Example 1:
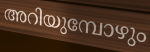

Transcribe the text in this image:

അറിയുമ്പോഴും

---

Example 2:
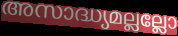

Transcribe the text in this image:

അസാദ്ധ്യമല്ലല്ലോ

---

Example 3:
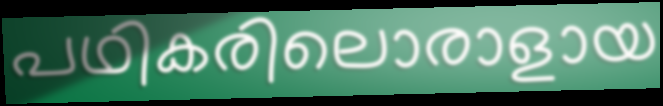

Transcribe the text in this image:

പഥികരിലൊരാളായ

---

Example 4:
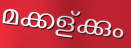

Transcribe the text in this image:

മക്കള്ക്കും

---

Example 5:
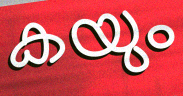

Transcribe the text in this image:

കയും